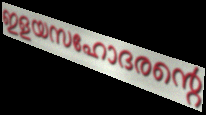
ഇളയസഹോദരന്റെ